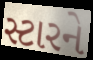
સ્ટારને